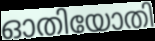
ഓതിയോതി